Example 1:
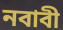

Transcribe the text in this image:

নবাবী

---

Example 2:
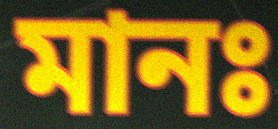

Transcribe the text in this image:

মানঃ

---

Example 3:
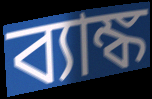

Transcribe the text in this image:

ব্যাঙ্ক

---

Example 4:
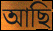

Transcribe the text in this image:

আছি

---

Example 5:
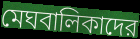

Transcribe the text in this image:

মেঘবালিকাদের